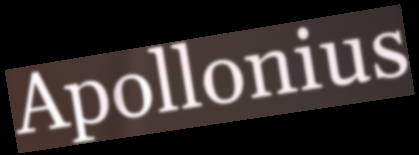
Apollonius